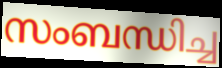
സംബന്ധിച്ച